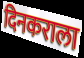
दिनकराला